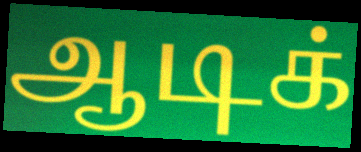
ஆடிக்